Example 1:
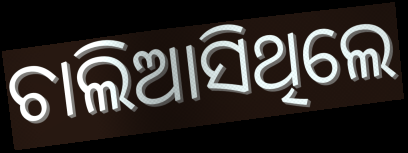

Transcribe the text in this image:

ଚାଲିଆସିଥିଲେ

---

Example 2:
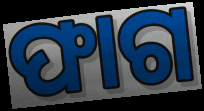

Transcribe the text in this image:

ଫାଗ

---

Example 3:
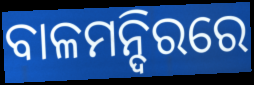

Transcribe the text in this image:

ବାଳମନ୍ଦିରରେ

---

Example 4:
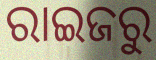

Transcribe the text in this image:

ରାଇଜରୁ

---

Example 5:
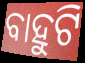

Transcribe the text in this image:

ବାହୁଟି